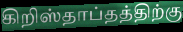
கிறிஸ்தாப்தத்திற்கு